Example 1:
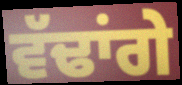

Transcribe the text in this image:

ਵੱਢਾਂਗੇ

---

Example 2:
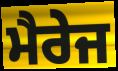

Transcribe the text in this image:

ਮੈਰੇਜ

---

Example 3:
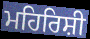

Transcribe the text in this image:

ਮਹਿਰਿਸ਼ੀ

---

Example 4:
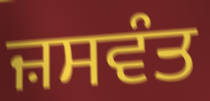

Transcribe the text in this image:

ਜ਼ਸਵੰਤ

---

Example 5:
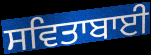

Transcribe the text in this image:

ਸਵਿਤਾਬਾਈ